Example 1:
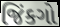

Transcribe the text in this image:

જિંકગો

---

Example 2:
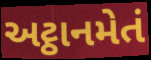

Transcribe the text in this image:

અટ્ઠાનમેતં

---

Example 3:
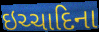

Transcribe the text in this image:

ઇચ્ચાદિના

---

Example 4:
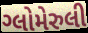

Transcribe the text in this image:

ગ્લોમેરુલી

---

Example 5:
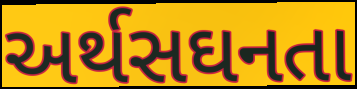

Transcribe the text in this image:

અર્થસઘનતા